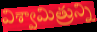
విశ్వామిత్రున్ని